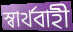
স্বার্থবাহী